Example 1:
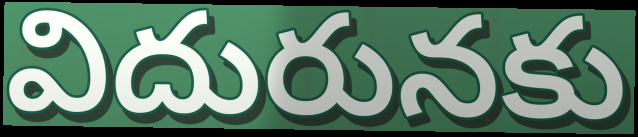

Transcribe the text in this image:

విదురునకు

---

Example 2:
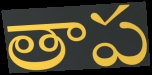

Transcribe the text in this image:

తాప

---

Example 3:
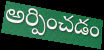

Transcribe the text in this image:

అర్పించడం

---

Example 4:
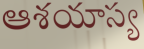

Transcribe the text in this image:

ఆశయాస్య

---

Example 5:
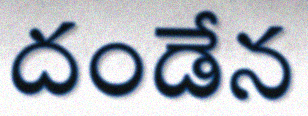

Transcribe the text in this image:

దండేన